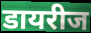
डायरीज